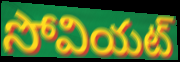
సోవియట్